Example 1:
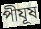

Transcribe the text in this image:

পীযূষ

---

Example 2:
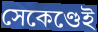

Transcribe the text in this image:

সেকেণ্ডেই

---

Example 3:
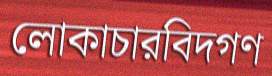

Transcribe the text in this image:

লোকাচারবিদগণ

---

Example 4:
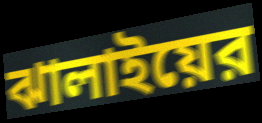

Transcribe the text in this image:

ঝালাইয়ের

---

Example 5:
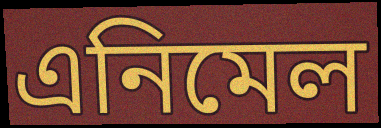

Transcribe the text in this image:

এনিমেল